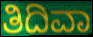
ತಿದಿವಾ